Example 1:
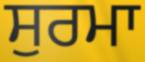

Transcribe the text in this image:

ਸੁਰਮਾ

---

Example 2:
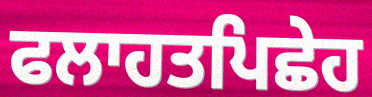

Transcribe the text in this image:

ਫਲਾਹਤਪਿਛੇਹ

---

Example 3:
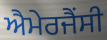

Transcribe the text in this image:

ਐਮੇਰਜੈਂਸੀ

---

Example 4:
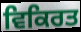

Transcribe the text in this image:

ਵਿਕਿਰਤ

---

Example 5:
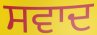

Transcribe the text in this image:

ਸਵਾਦ